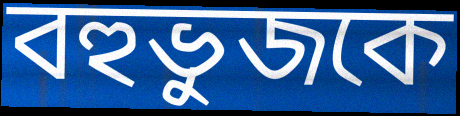
বহুভুজকে